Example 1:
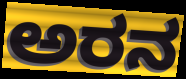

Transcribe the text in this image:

ಅರನ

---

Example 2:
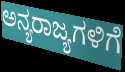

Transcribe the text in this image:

ಅನ್ಯರಾಜ್ಯಗಳಿಗೆ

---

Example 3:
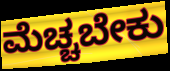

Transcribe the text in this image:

ಮೆಚ್ಚಬೇಕು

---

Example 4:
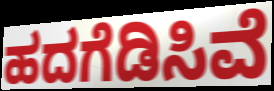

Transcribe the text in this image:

ಹದಗೆಡಿಸಿವೆ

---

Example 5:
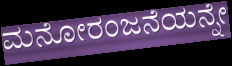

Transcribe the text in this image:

ಮನೋರಂಜನೆಯನ್ನೇ